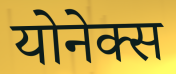
योनेक्स